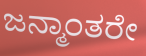
ಜನ್ಮಾಂತರೇ